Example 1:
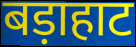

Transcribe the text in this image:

बड़ाहाट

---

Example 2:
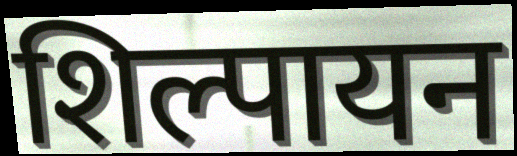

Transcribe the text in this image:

शिल्पायन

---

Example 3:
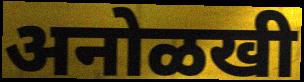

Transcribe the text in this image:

अनोळखी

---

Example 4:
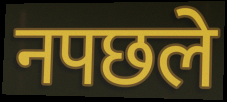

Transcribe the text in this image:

नपछले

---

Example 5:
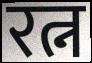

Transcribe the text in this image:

रत्न